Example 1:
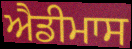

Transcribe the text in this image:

ਐਡੀਮਾਸ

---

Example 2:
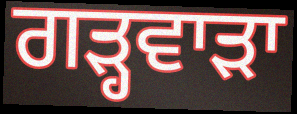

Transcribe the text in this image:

ਗੜ੍ਹਵਾੜਾ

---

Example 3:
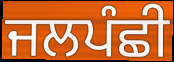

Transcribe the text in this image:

ਜਲਪੰਛੀ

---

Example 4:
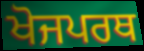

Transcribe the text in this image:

ਖੋਜਪਰਥ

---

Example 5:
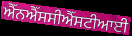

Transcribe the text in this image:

ਐੱਨਐੱਸਸੀਐੱਸਟੀਆਈ